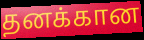
தனக்கான